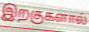
இறகுகளால்